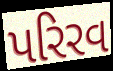
પરિરવ